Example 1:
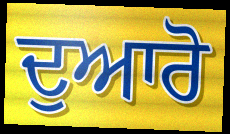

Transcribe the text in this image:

ਦੁਆਰੋ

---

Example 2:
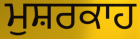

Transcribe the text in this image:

ਮੁਸ਼ਰਕਾਹ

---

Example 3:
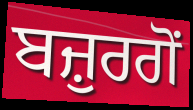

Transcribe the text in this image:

ਬਜ਼ੁਰਗੋਂ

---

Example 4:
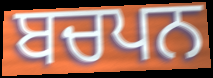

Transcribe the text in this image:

ਬਚਪਨ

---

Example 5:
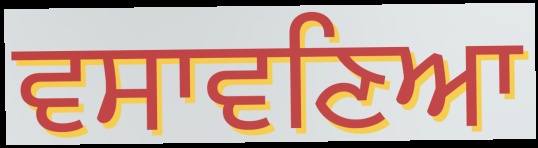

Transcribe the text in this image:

ਵਸਾਵਣਿਆ